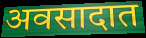
अवसादात